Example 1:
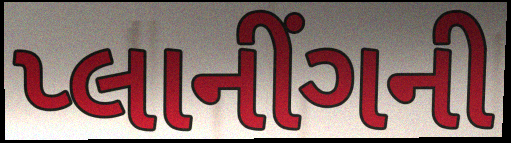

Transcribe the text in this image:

પ્લાનીંગની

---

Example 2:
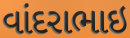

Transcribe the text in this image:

વાંદરાભાઇ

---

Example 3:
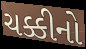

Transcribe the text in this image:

ચક્કીનો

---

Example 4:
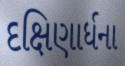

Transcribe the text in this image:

દક્ષિણાર્ધના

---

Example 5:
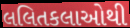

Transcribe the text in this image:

લલિતકલાઓથી